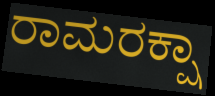
ರಾಮರಕ್ಷಾ